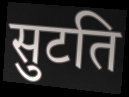
सुटति